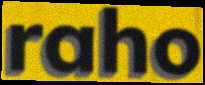
raho